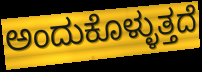
ಅಂದುಕೊಳ್ಳುತ್ತದೆ